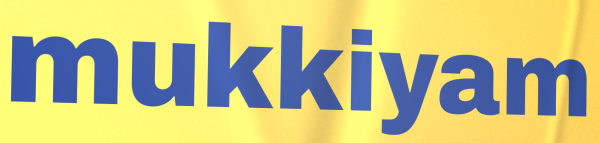
mukkiyam